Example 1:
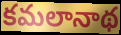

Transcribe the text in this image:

కమలానాథ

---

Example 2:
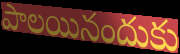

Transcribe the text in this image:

పాలయినందుకు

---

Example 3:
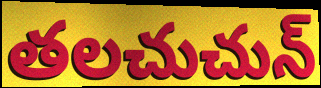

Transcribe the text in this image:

తలచుచున్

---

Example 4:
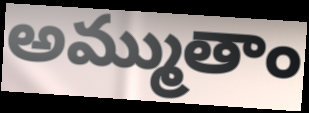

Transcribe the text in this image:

అమ్ముతాం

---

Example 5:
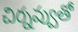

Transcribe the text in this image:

చిర్నవ్వుతో